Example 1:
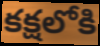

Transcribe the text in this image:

కక్షలోకి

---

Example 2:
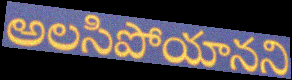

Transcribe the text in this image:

అలసిపోయానని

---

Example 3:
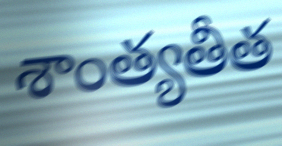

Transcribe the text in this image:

శాంత్యతీత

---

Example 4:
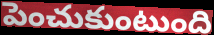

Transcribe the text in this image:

పెంచుకుంటుంది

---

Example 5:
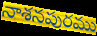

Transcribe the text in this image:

నాశనపురము